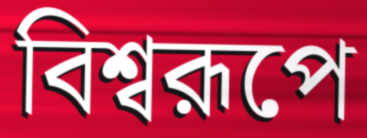
বিশ্বরূপে